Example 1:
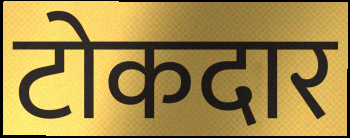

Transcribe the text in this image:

टोकदार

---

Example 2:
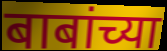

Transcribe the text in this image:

बाबांच्या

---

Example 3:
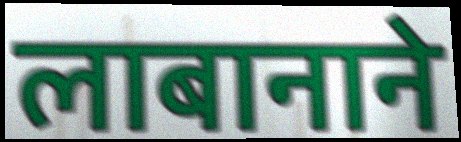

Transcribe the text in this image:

लाबानाने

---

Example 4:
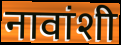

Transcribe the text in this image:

नावांशी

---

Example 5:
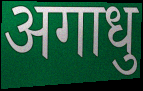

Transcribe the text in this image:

अगाधु